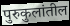
पुरुकुलांतील